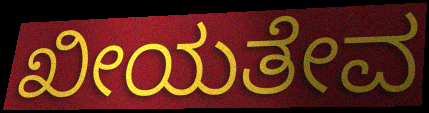
ಖೀಯತೇವ